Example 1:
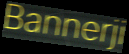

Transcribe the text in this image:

Bannerji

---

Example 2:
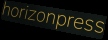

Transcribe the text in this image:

horizonpress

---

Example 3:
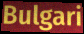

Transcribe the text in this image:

Bulgari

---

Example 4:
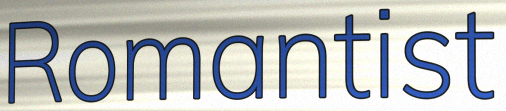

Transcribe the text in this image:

Romantist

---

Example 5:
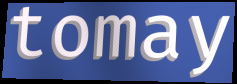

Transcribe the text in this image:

tomay